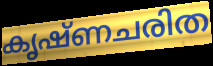
കൃഷ്ണചരിത